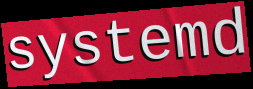
systemd